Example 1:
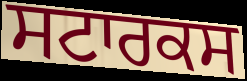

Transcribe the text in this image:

ਸਟਾਰਕਸ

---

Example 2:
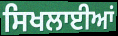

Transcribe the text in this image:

ਸਿਖਲਾਈਆਂ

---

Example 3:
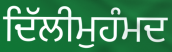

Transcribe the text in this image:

ਦਿੱਲੀਮੁਹੰਮਦ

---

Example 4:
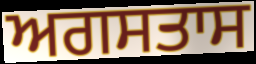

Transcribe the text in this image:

ਅਗਸਤਾਸ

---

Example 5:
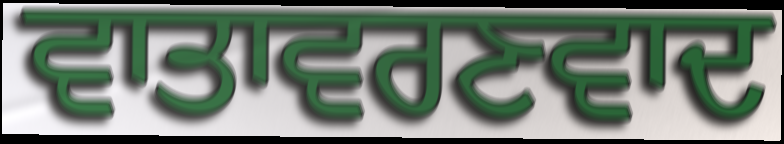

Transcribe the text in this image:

ਵਾਤਾਵਰਣਵਾਦ